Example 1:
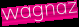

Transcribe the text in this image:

wagnaz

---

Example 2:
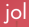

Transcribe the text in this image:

jol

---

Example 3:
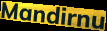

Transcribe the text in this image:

Mandirnu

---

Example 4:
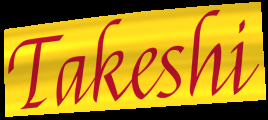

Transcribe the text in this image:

Takeshi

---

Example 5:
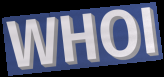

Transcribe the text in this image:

WHOI